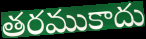
తరముకాదు